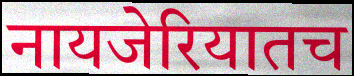
नायजेरियातच